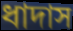
ধাদাস